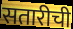
सतारीची